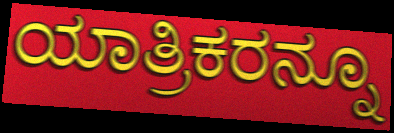
ಯಾತ್ರಿಕರನ್ನೂ